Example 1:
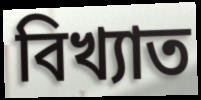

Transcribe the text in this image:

বিখ্যাত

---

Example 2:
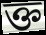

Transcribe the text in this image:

ক্ত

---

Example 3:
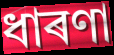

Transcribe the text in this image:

ধাৰণা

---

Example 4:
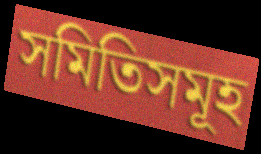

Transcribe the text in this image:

সমিতিসমূহ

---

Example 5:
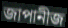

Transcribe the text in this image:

জাপানীজ